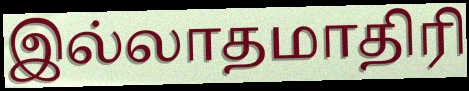
இல்லாதமாதிரி